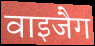
वाइजैग